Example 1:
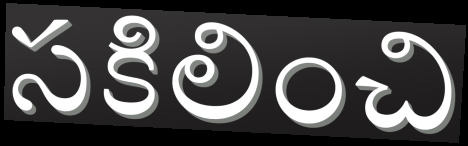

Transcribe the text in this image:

సకిలించి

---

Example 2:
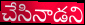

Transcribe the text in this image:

చేసినాడని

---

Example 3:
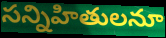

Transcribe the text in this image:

సన్నిహితులనూ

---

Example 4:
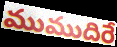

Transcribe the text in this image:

ముముదిరే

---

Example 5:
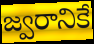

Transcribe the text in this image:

జ్వరానికే